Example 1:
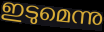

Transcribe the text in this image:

ഇടുമെന്നു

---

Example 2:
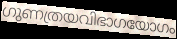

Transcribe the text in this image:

ഗുണത്രയവിഭാഗയോഗം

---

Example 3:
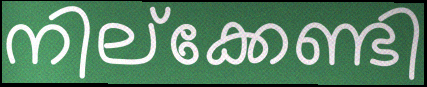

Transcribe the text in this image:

നില്ക്കേണ്ടി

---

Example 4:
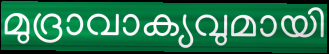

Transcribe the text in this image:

മുദ്രാവാക്യവുമായി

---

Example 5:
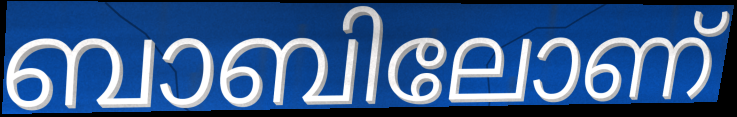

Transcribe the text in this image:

ബാബിലോണ്